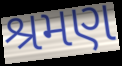
શ્રમણ